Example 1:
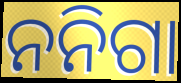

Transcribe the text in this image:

ନନିଗା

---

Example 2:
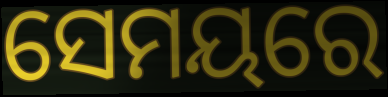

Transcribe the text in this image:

ସେମୟରେ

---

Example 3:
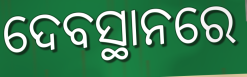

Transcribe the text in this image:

ଦେବସ୍ଥାନରେ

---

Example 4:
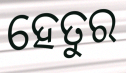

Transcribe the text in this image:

ହେତୁର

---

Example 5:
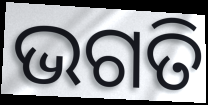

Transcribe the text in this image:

ଭଗତି